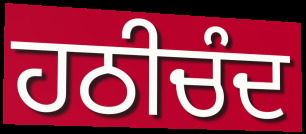
ਹਠੀਚੰਦ